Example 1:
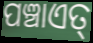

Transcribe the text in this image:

ପଞ୍ଚାଏତ୍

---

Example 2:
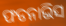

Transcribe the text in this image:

ଫଡନାଭିସ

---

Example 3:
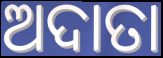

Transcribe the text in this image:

ଅଦାତା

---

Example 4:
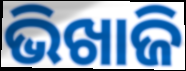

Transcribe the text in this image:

ଭିଖାଜି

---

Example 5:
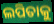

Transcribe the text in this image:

ଲପିତାକୁ